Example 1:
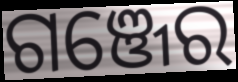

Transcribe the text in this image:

ଗଞ୍ଜେର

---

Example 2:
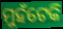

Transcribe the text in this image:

ମୁହଁଟେକି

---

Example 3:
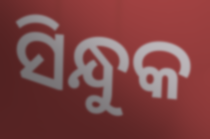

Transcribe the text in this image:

ସିନ୍ଧୁକ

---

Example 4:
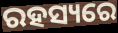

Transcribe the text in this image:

ରହସ୍ୟରେ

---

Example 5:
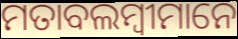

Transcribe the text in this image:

ମତାବଲମ୍ବୀମାନେ